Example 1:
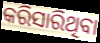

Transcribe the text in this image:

କରିସାରିଥିବା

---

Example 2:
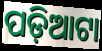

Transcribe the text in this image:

ପଡ଼ିଆଟା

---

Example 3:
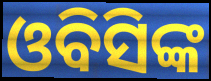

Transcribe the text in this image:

ଓବିସିଙ୍କ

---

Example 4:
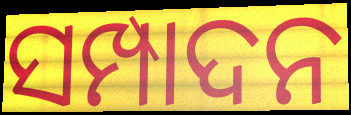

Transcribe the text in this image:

ସମ୍ପାଦନ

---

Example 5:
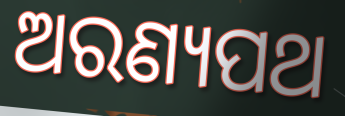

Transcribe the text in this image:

ଅରଣ୍ୟପଥ